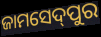
ଜାମସେଦ୍‌ପୁର